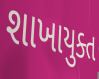
શાખાયુક્ત